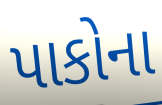
પાકોના